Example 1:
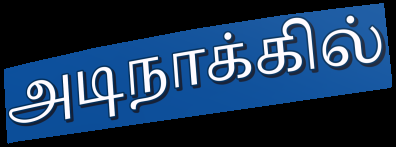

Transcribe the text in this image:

அடிநாக்கில்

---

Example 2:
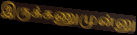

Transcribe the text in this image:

இருக்கணுமுன்னு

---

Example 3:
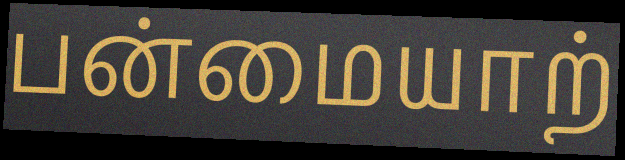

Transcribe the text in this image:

பன்மையாற்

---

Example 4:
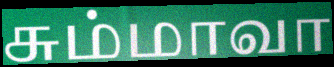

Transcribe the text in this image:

சும்மாவா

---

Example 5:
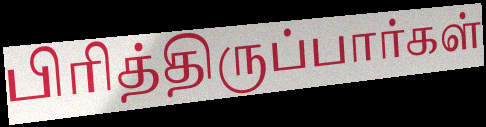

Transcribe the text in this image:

பிரித்திருப்பார்கள்